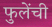
फुलेंची